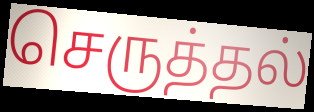
செருத்தல்